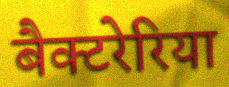
बैक्टरेरिया